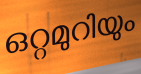
ഒറ്റമുറിയും